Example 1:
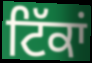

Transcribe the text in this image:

ਟਿੱਕਾਂ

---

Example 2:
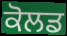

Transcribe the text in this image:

ਕੋਲਡ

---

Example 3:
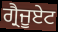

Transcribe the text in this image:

ਗ੍ਰੈਜੂਏਟ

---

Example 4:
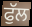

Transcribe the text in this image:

ਫੁੱਲ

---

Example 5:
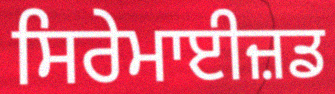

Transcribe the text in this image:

ਸਿਰੇਮਾਈਜ਼ਡ